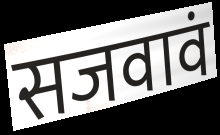
सजवावं